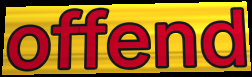
offend